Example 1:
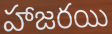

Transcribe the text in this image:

హాజరయి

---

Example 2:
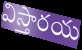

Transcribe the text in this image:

విస్తారయ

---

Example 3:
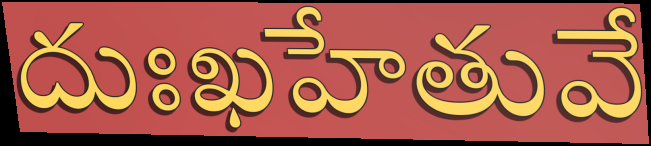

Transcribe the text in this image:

దుఃఖహేతువే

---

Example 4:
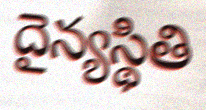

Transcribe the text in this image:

దైన్యస్థితి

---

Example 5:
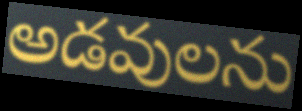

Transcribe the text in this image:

అడవులను